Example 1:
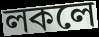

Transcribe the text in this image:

লকলে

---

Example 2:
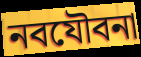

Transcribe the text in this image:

নবযৌবনা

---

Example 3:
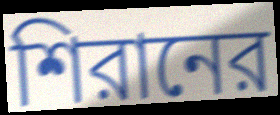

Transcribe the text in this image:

শিরানের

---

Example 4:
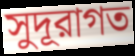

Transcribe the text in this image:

সুদূরাগত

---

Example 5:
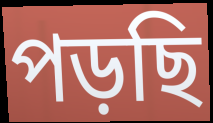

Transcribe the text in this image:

পড়ছি